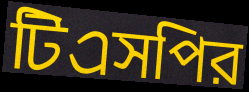
টিএসপির